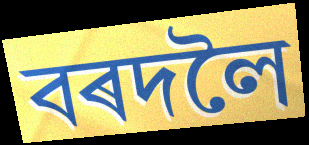
বৰদলৈ